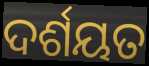
ଦର୍ଶୟତ